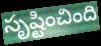
సృష్టించింది